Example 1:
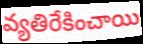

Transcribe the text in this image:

వ్యతిరేకించాయి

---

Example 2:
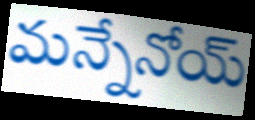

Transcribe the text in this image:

మన్నేనోయ్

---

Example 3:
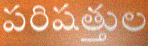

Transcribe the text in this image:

పరిషత్తుల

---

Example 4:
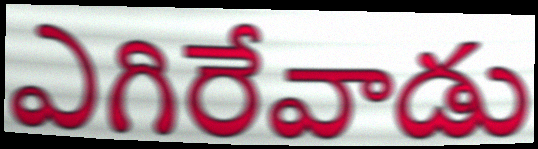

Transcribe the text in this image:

ఎగిరేవాడు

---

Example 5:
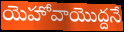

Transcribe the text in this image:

యెహోవాయొద్దనే